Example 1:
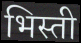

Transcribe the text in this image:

भिस्ती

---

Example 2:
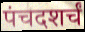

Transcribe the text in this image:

पंचदशर्चं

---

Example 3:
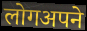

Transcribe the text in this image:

लोगअपने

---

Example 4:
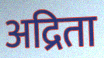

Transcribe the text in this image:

अद्रिता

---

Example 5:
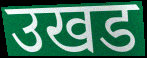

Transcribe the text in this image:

उखड